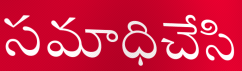
సమాధిచేసి